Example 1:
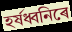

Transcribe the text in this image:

হৰ্ষধ্বনিৰে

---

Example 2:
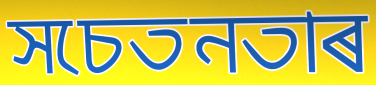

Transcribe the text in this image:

সচেতনতাৰ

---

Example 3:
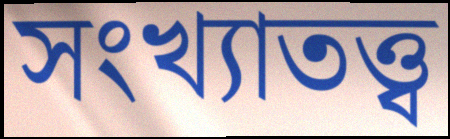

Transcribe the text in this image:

সংখ্যাতত্ত্ব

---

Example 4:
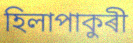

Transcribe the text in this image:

হিলাপাকুৰী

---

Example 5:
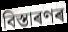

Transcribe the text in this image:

বিস্তাৰণৰ